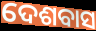
ଦେଶବାସ